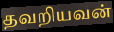
தவறியவன்